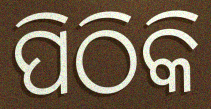
ପିଠିକି